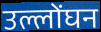
उल्लोंघन